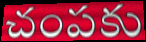
చంపకు